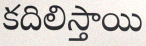
కదిలిస్తాయి